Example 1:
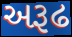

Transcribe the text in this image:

અરૂઢ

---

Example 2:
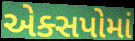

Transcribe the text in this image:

એક્સપોમાં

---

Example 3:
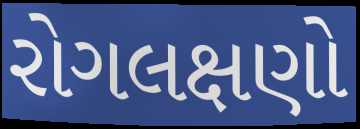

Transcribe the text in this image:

રોગલક્ષણો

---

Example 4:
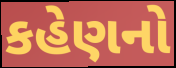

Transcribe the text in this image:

કહેણનો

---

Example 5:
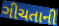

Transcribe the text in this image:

ગીચતાની